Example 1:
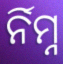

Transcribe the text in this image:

ର୍ନିମ୍ନ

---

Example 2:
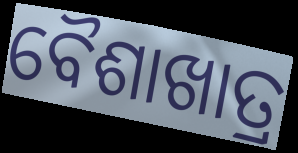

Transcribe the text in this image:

ବୈଶାଖାତ୍ର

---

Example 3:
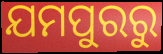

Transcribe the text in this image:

ଯମପୁରରୁ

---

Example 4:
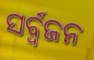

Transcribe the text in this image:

ସର୍ବ୍ବଜନ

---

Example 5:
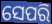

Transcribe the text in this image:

ସେପରି